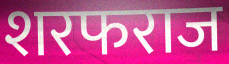
शरफराज